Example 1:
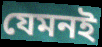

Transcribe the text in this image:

যেমনই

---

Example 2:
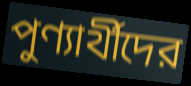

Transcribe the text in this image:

পুণ্যার্থীদের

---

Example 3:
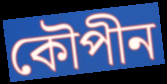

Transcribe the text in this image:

কৌপীন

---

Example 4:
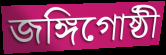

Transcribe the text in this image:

জঙ্গিগোষ্ঠী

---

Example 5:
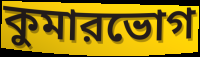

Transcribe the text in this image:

কুমারভোগ